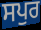
ਸਪੁਰ